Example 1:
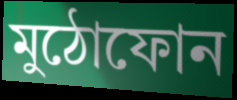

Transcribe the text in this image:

মুঠোফোন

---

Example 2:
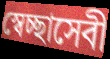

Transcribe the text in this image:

স্বেচ্ছাসেবী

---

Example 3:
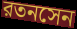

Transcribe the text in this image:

রতনসেন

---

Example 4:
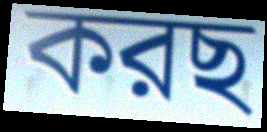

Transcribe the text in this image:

করছ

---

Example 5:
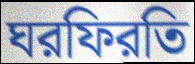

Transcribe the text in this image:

ঘরফিরতি